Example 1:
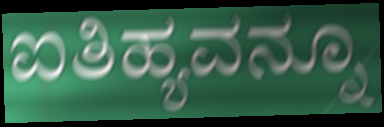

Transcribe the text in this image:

ಐತಿಹ್ಯವನ್ನೂ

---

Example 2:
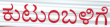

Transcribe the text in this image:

ಕುಟುಂಬಳಿಗೆ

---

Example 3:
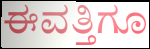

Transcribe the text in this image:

ಈವತ್ತಿಗೂ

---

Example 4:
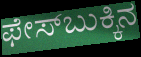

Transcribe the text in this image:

ಫೇಸ್‌ಬುಕ್ಕಿನ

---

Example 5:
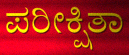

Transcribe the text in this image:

ಪರೀಕ್ಷಿತಾ